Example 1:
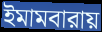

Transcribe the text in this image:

ইমামবারায়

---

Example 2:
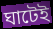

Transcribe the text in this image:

ঘাটেই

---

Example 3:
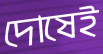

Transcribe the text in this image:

দোষেই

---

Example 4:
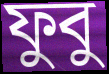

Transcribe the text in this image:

ফুবু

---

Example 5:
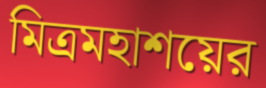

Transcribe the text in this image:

মিত্রমহাশয়ের